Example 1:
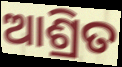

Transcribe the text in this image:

ଆଶ୍ରିତ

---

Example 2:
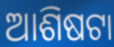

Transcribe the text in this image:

ଆଶିଷଟା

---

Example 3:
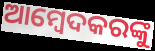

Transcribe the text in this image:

ଆମ୍ବେଦକରଙ୍କୁ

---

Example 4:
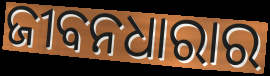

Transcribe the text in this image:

ଜୀବନଧାରାର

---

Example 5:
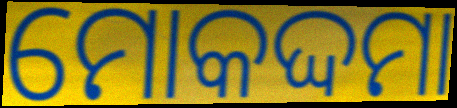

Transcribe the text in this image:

ମୋକଦ୍ଦମା